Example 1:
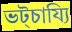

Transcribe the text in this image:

ভট্চায্যি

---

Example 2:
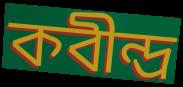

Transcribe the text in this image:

কবীন্দ্র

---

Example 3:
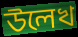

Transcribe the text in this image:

উলেখ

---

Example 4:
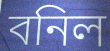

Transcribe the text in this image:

বনিল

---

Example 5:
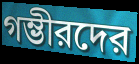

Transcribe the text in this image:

গম্ভীরদের